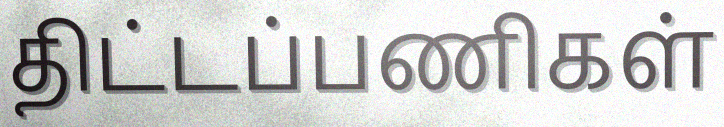
திட்டப்பணிகள்